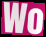
Wo